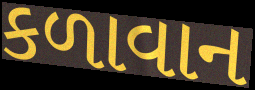
કળાવાન